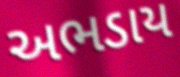
અભડાય